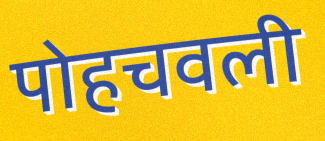
पोहचवली